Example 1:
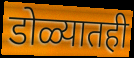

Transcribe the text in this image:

डोळ्यातही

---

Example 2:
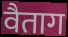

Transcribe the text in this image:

वैताग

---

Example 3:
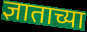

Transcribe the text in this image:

ज्ञाताच्या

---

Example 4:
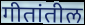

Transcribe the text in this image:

गीतांतील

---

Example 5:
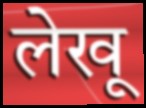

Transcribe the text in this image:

लेखू